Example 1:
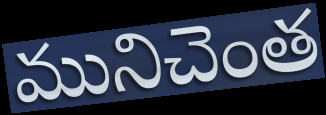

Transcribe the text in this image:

మునిచెంత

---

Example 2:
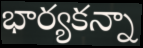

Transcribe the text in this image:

భార్యకన్నా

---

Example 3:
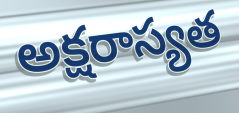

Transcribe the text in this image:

అక్షరాస్యత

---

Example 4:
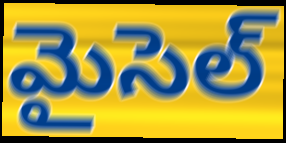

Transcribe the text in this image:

మైసెల్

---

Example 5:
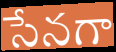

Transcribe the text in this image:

సేనగా